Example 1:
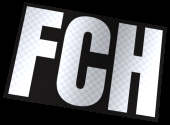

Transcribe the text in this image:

FCH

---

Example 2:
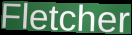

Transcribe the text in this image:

Fletcher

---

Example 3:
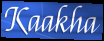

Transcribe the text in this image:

Kaakha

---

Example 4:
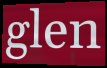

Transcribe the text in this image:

glen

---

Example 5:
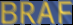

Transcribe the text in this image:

BRAF